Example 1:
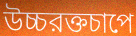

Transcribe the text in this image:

উচ্চরক্তচাপে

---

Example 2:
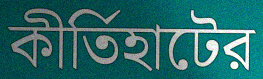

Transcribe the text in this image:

কীর্তিহাটের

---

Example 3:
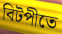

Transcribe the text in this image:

বিটপীতে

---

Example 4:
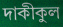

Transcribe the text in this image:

দাকীকুল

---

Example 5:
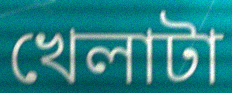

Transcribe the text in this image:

খেলাটা